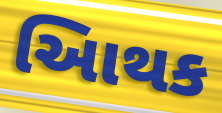
આિથક